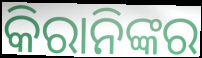
କିରାନିଙ୍କର